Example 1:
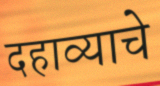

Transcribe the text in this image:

दहाव्याचे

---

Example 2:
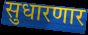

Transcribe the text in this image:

सुधारणार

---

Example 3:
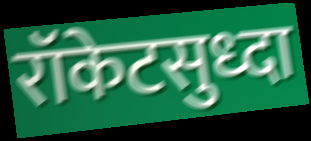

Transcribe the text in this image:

रॉकेटसुध्दा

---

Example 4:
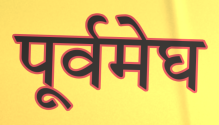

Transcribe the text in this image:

पूर्वमेघ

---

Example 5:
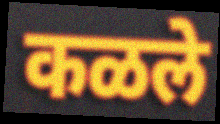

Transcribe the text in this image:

कळले